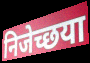
निजेच्छया